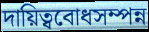
দায়িত্ববোধসম্পন্ন